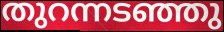
തുറന്നടഞ്ഞു